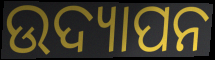
ଉଦ୍ୟାପନ